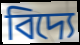
বিদ্যে